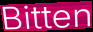
Bitten